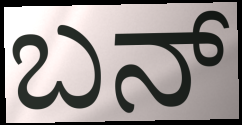
ಬನ್